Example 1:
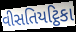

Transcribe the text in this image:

વીસતિયટ્ઠિકા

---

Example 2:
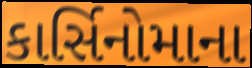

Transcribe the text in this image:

કાર્સિનોમાના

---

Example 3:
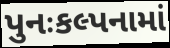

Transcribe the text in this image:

પુનઃકલ્પનામાં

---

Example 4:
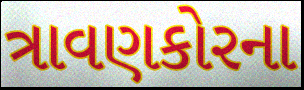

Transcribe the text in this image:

ત્રાવણકોરના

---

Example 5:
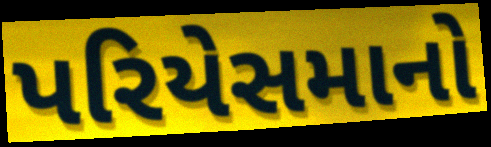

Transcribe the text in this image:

પરિયેસમાનો